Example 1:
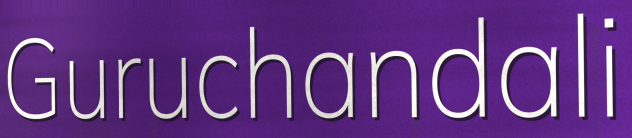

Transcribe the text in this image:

Guruchandali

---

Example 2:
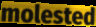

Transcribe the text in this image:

molested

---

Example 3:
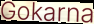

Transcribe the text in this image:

Gokarna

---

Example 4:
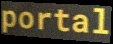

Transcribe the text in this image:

portal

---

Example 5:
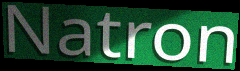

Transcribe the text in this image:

Natron